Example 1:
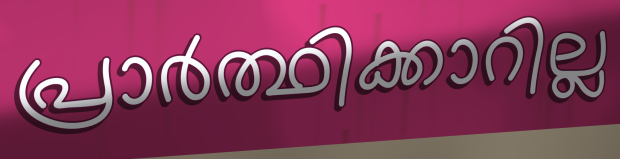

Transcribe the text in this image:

പ്രാർത്ഥിക്കാറില്ല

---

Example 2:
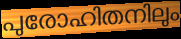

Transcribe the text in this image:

പുരോഹിതനിലും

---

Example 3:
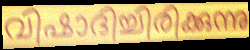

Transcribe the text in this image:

വിഷാദിച്ചിരിക്കുന്നു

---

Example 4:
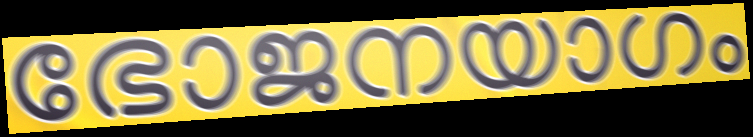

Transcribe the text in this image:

ഭോജനയാഗം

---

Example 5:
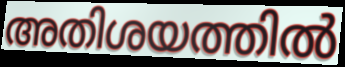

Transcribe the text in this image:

അതിശയത്തിൽ